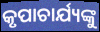
କୃପାଚାର୍ଯ୍ୟଙ୍କୁ